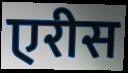
एरीस